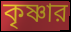
কৃষ্ণার